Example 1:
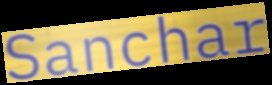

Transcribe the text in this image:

Sanchar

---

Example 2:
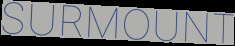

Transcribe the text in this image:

SURMOUNT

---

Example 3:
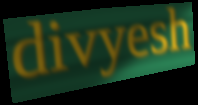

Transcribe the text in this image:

divyesh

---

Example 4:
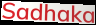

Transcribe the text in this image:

Sadhaka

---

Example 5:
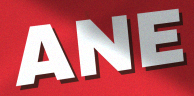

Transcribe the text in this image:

ANE